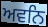
ਅਵਨਿ